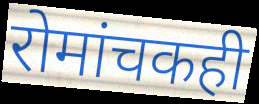
रोमांचकही